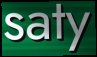
saty